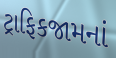
ટ્રાફિકજામનાં